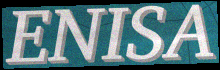
ENISA